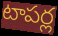
టాపర్ల